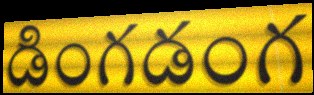
డింగడంగ